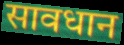
सावधान